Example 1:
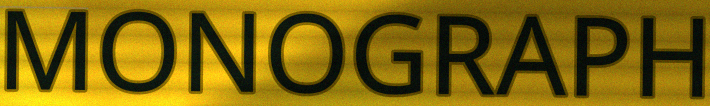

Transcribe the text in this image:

MONOGRAPH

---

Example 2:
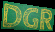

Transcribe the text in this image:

DGR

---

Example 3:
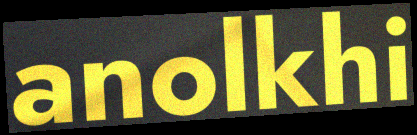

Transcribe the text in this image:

anolkhi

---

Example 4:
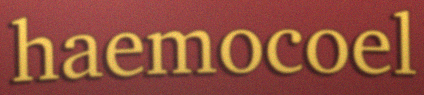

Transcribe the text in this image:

haemocoel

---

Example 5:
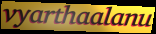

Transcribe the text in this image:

vyarthaalanu